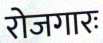
रोजगारः